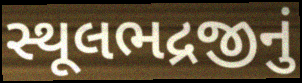
સ્થૂલભદ્રજીનું